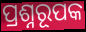
ପ୍ରଶ୍ନରୂପକ